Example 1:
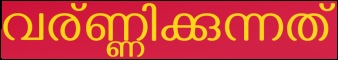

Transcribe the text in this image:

വര്ണ്ണിക്കുന്നത്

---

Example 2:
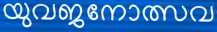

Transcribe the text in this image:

യുവജനോത്സവ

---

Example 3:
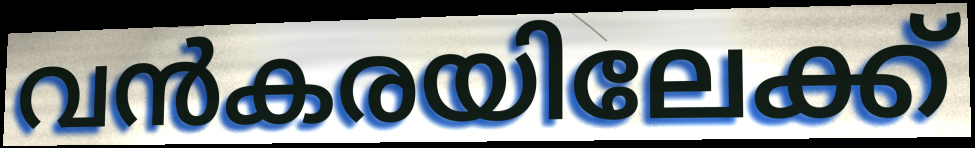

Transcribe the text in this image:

വൻകരയിലേക്ക്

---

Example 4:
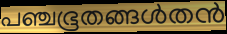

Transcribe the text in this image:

പഞ്ചഭൂതങ്ങൾതൻ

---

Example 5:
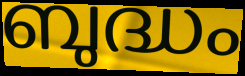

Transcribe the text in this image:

ബുദ്ധം